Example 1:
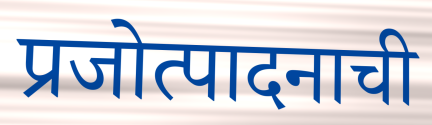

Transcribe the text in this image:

प्रजोत्पादनाची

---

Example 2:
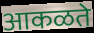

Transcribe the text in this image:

आकळते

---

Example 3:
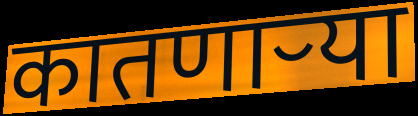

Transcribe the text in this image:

कातणाऱ्या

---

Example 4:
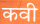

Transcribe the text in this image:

कवी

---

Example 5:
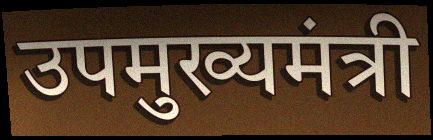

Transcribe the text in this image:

उपमुख्यमंत्री